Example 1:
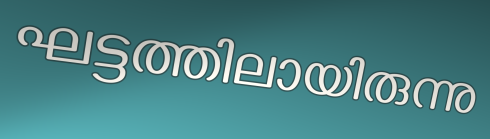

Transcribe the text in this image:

ഘട്ടത്തിലായിരുന്നു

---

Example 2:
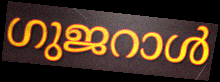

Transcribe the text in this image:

ഗുജറാൾ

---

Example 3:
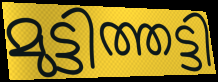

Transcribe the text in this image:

മുട്ടിത്തട്ടി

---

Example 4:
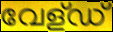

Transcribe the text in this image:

വേള്ഡ്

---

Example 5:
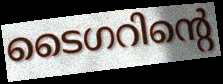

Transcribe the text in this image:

ടൈഗറിന്റെ